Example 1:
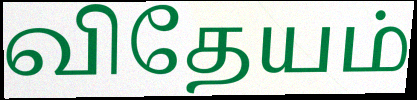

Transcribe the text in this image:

விதேயம்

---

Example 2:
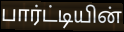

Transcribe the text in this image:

பார்ட்டியின்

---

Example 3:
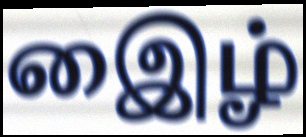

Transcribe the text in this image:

இைழ்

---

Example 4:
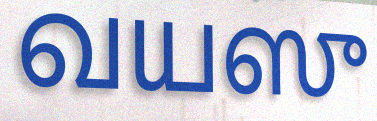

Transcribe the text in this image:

வயஸு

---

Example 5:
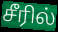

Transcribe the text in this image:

சீரில்